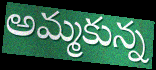
అమ్మకున్న